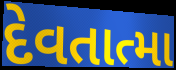
દેવતાત્મા